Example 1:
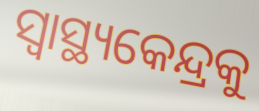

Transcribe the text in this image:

ସ୍ୱାସ୍ଥ୍ୟକେନ୍ଦ୍ରକୁ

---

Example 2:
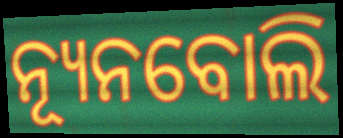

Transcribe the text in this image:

ନ୍ୟୂନବୋଲି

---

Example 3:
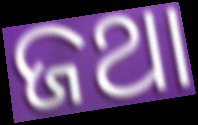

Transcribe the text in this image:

ଜଥା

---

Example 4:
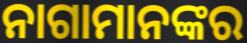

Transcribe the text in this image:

ନାଗାମାନଙ୍କର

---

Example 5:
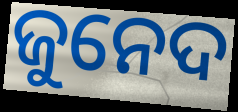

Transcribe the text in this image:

ଜୁନେଦ